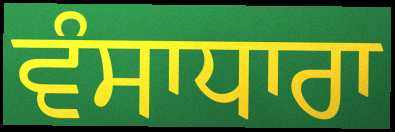
ਵੰਸਾਧਾਰਾ